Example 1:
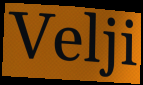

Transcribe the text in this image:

Velji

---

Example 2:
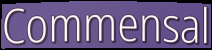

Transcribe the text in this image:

Commensal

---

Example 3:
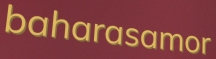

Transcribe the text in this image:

baharasamor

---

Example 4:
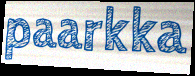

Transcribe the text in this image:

paarkka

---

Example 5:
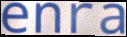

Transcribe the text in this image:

enra